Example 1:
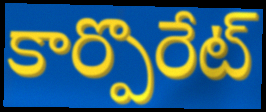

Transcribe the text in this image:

కార్పొరేట్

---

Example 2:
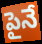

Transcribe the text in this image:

పైనే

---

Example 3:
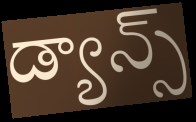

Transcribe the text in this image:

డ్యాన్స్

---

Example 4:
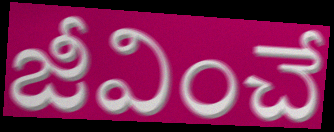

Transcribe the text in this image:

జీవించే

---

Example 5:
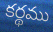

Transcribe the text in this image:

కర్థము